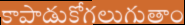
కాపాడుకోగలుగుతాం